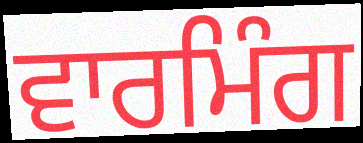
ਵਾਰਮਿੰਗ